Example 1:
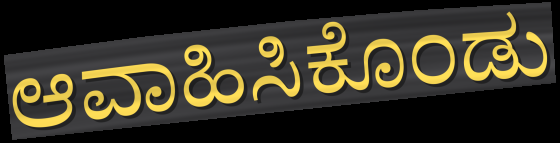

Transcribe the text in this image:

ಆವಾಹಿಸಿಕೊಂಡು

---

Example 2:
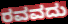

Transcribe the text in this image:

ರವವದು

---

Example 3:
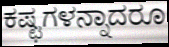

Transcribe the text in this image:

ಕಷ್ಟಗಳನ್ನಾದರೂ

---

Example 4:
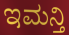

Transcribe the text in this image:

ಇಮನ್ತಿ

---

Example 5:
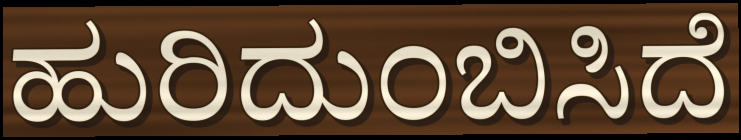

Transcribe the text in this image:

ಹುರಿದುಂಬಿಸಿದೆ